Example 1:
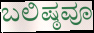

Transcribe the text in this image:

ಬಲಿಷ್ಠವೂ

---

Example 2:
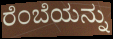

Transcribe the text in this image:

ರೆಂಬೆಯನ್ನು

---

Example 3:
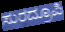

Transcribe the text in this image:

ಸುರದ್ರೂಪಿ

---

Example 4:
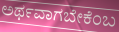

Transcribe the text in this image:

ಅರ್ಥವಾಗಬೇಕೆಂಬ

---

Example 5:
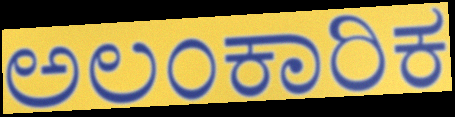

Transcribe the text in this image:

ಅಲಂಕಾರಿಕ